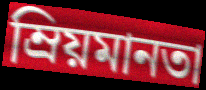
ম্রিয়মানতা